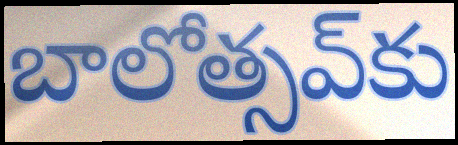
బాలోత్సవ్‌కు